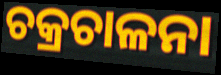
ଚକ୍ରଚାଳନା